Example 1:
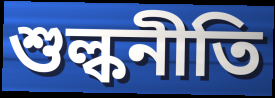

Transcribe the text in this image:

শুল্কনীতি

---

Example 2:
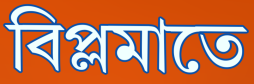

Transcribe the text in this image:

বিপ্লমাতে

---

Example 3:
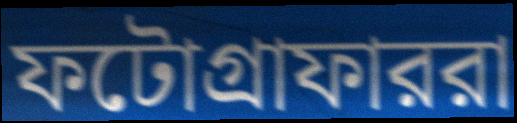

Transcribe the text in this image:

ফটোগ্রাফাররা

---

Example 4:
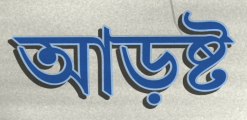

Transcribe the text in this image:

আড়ষ্ট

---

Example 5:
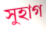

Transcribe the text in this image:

সুহাগ